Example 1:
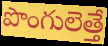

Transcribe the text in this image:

పొంగులెత్తే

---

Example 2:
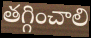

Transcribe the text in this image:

తగ్గించాలి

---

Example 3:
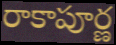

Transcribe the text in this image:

రాకాపూర్ణ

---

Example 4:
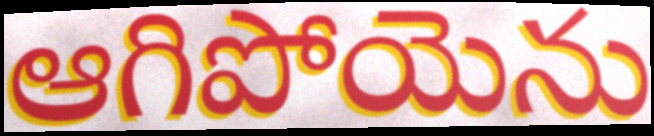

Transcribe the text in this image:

ఆగిపోయెను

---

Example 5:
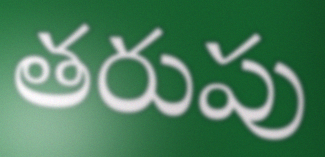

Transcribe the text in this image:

తరుపు